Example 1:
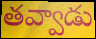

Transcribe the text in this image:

తవ్వాడు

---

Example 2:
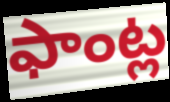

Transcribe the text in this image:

ఫాంట్ల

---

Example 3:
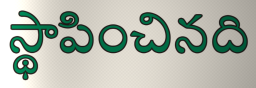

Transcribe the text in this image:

స్థాపించినది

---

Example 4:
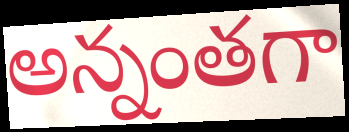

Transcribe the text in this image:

అన్నంతగా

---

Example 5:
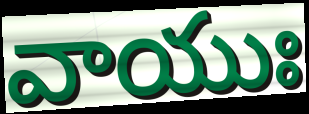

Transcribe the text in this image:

వాయుః